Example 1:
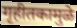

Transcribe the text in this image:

गृहीतकामुळे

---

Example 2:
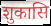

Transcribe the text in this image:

शुकासि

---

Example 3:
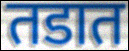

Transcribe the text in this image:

तडात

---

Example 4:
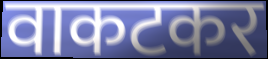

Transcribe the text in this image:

वाकटकर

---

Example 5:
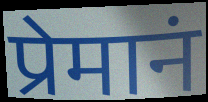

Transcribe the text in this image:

प्रेमानं